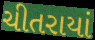
ચીતરાયાં